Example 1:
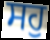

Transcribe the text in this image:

ਸਹੁ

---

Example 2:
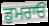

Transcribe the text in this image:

ਡੁਮਰਾਓਂ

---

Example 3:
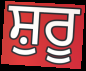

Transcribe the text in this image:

ਸ਼ੁਰੂ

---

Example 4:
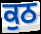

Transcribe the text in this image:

ਕੁਠ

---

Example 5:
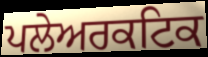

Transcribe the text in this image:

ਪਲੇਅਰਕਟਿਕ